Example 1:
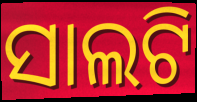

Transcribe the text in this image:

ସାଲଟି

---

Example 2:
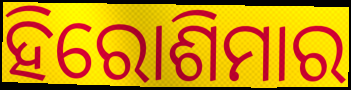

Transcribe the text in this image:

ହିରୋଶିମାର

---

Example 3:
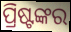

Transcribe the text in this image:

ପ୍ରିଷ୍ଟଙ୍କର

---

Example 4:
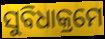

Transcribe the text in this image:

ସୁବିଧାକ୍ରମେ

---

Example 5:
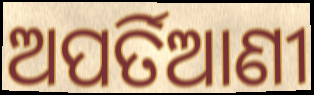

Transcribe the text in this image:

ଅପର୍ତିଆଣୀ